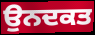
ਉਨਦਕਤ